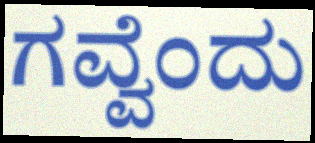
ಗವ್ವೆಂದು